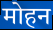
मोहन